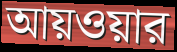
আয়ওয়ার